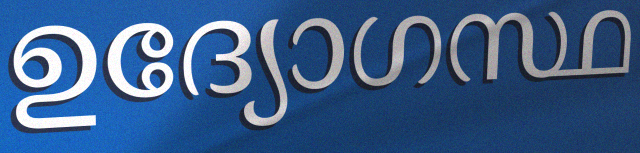
ഉദ്യോഗസ്ഥ